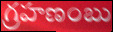
గ్రహణంబు